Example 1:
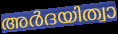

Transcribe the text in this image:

അർദയിത്വാ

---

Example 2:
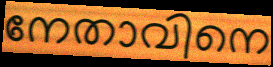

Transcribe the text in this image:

നേതാവിനെ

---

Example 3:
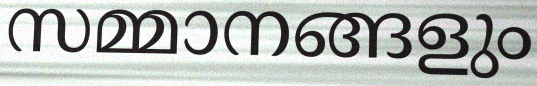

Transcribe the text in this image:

സമ്മാനങ്ങളും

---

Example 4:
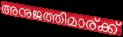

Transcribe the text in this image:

അനുജത്തിമാര്ക്ക്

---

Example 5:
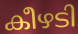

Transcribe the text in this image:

കീഴടി